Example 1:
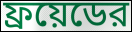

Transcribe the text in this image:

ফ্রয়েডের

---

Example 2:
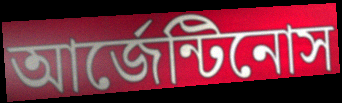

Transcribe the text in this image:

আর্জেন্টিনোস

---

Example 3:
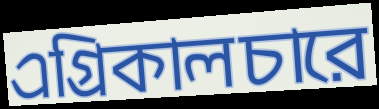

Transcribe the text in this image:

এগ্রিকালচারে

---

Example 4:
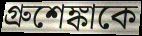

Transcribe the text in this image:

গ্রুশেঙ্কাকে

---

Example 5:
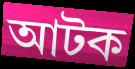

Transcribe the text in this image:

আটক